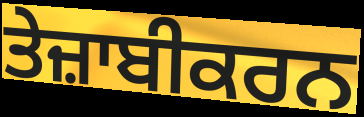
ਤੇਜ਼ਾਬੀਕਰਨ